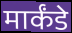
मार्कंडे